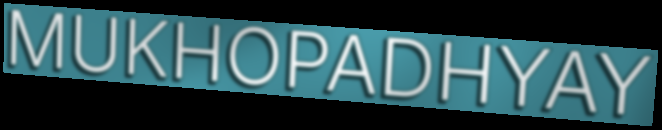
MUKHOPADHYAY